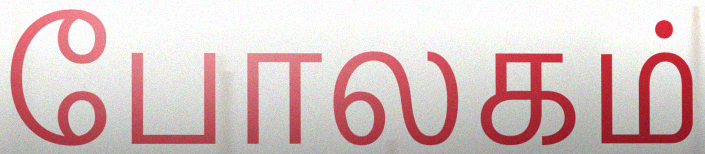
போலகம்